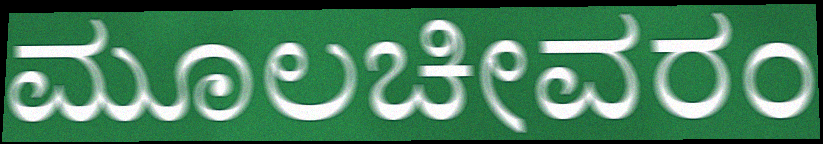
ಮೂಲಚೀವರಂ